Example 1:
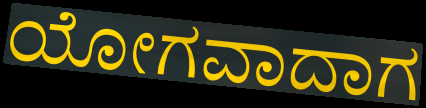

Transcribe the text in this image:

ಯೋಗವಾದಾಗ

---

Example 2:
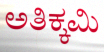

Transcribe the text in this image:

ಅತಿಕ್ಕಮಿ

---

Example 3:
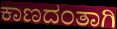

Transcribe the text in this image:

ಕಾಣದಂತಾಗಿ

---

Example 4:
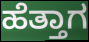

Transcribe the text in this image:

ಹೆತ್ತಾಗ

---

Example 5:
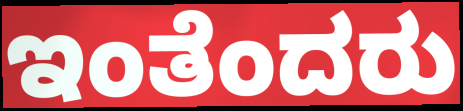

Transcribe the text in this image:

ಇಂತೆಂದರು